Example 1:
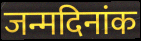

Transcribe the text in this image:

जन्मदिनांक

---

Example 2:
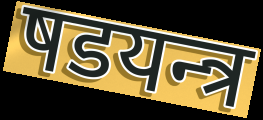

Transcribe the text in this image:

षडयन्त्र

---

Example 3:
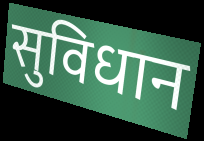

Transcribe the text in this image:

सुविधान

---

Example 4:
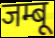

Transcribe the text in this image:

जम्बू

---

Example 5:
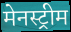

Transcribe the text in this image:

मेनस्ट्रीम